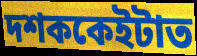
দশককেইটাত